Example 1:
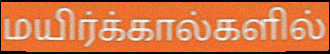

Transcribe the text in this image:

மயிர்க்கால்களில்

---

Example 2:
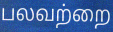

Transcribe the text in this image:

பலவற்றை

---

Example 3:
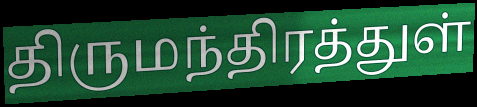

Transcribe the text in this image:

திருமந்திரத்துள்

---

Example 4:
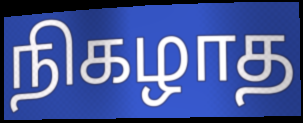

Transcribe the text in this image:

நிகழாத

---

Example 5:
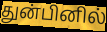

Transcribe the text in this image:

துன்பினில்